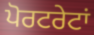
ਪੋਰਟਰੇਟਾਂ